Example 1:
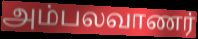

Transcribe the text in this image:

அம்பலவாணர்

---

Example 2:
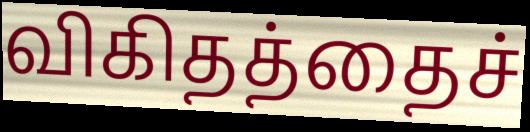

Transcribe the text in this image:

விகிதத்தைச்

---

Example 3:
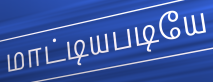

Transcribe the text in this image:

மாட்டியபடியே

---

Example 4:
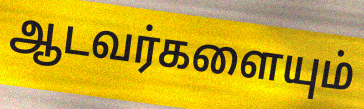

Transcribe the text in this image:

ஆடவர்களையும்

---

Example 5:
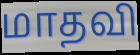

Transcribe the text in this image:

மாதவி